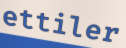
ettiler